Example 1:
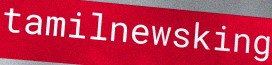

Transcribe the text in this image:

tamilnewsking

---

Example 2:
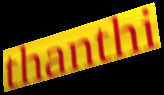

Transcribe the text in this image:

thanthi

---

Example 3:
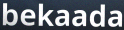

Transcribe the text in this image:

bekaada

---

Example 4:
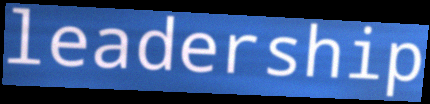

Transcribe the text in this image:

leadership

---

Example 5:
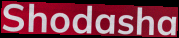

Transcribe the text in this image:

Shodasha